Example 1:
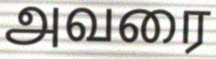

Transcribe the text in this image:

அவரை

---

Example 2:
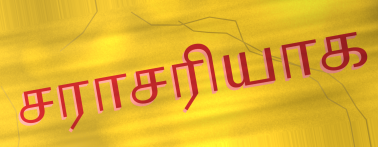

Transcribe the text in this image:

சராசரியாக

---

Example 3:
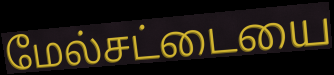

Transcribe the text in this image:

மேல்சட்டையை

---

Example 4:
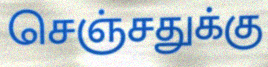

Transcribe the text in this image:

செஞ்சதுக்கு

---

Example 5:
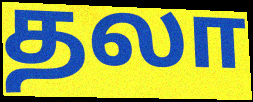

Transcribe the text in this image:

தலா